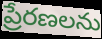
ప్రేరణలను